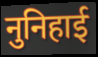
नुनिहाई